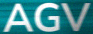
AGV